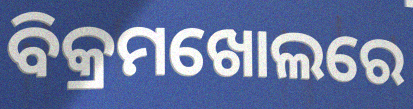
ବିକ୍ରମଖୋଲରେ